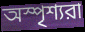
অস্পৃশ্যরা